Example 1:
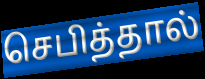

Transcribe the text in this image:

செபித்தால்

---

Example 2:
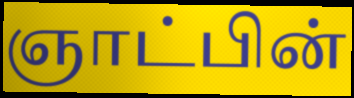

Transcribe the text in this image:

ஞாட்பின்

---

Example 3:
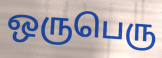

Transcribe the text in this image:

ஒருபெரு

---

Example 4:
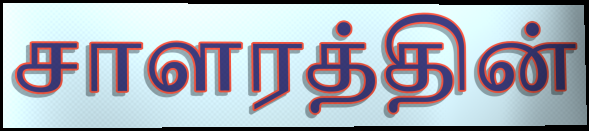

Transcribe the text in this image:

சாளரத்தின்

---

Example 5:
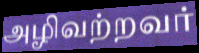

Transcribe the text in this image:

அழிவற்றவர்